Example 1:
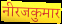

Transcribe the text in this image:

नीरजकुमार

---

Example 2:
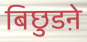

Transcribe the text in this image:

बिछुडऩे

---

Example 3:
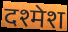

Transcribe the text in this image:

दश्मेश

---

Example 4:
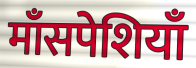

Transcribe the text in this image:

माँसपेशियाँ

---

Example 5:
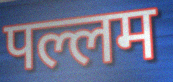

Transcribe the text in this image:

पल्लम